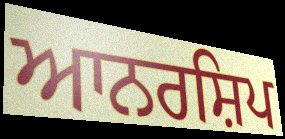
ਆਨਰਸ਼ਿਪ